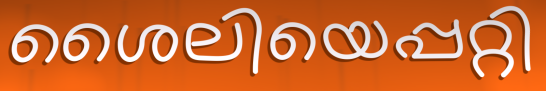
ശൈലിയെപ്പറ്റി